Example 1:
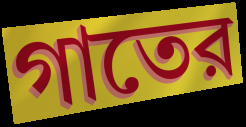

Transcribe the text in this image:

গাতের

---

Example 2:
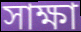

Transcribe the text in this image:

সাক্ষা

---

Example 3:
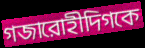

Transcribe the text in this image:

গজারোহীদিগকে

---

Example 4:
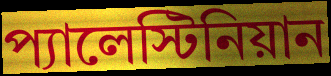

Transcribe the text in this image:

প্যালেস্টিনিয়ান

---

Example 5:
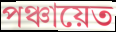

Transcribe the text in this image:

পঞ্চায়েত